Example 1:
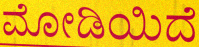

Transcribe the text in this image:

ಮೋಡಿಯಿದೆ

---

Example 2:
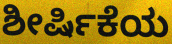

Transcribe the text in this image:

ಶೀರ್ಷಿಕೆಯ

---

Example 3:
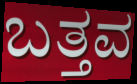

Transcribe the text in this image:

ಬತ್ತವ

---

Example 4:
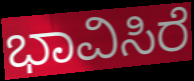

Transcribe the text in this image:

ಭಾವಿಸಿರೆ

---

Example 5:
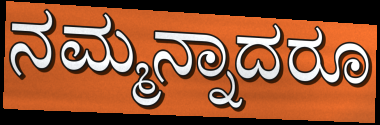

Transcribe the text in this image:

ನಮ್ಮನ್ನಾದರೂ